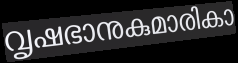
വൃഷഭാനുകുമാരികാ